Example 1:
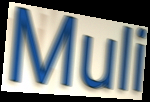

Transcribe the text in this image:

Muli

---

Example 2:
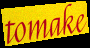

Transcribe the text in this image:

tomake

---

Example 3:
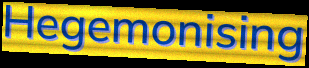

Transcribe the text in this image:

Hegemonising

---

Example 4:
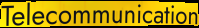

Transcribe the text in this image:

Telecommunication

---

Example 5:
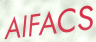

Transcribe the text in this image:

AIFACS